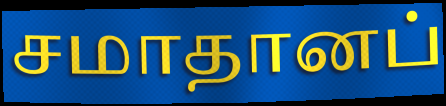
சமாதானப்